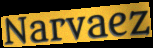
Narvaez